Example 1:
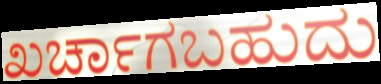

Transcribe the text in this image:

ಖರ್ಚಾಗಬಹುದು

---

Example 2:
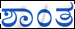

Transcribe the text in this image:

ಶಾಂತ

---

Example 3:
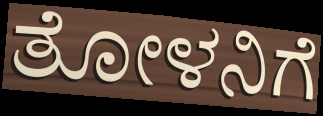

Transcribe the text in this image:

ತೋಳನಿಗೆ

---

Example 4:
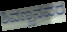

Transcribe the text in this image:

ಶಿವಣ್ಣನವರ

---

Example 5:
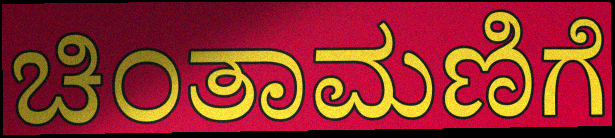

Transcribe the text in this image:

ಚಿಂತಾಮಣಿಗೆ